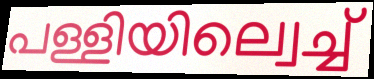
പള്ളിയില്വെച്ച്